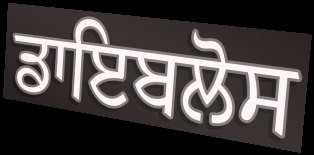
ਡਾਇਬਲੋਸ